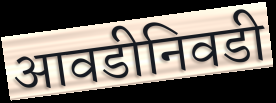
आवडीनिवडी